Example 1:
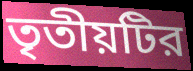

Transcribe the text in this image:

তৃতীয়টির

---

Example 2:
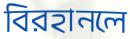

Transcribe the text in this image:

বিরহানলে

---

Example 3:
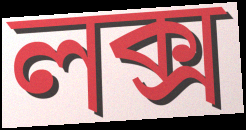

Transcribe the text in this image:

লক্স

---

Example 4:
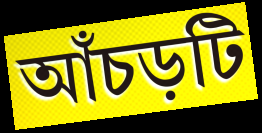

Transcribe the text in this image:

আঁচড়টি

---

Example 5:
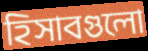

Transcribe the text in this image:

হিসাবগুলো